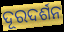
ଦୂରଦର୍ଶନ